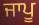
ਜਾਪੂ